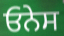
ਓਨੇਸ